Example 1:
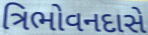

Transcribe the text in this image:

ત્રિભોવનદાસે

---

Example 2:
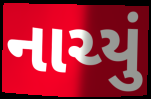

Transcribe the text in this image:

નાચ્યું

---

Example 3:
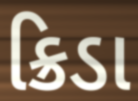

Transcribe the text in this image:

ક્રિડા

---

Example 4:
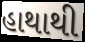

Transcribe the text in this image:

હાથાથી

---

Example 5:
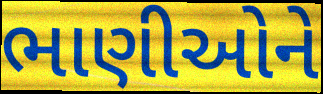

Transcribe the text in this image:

ભાણીઓને